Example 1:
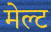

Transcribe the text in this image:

मेल्ट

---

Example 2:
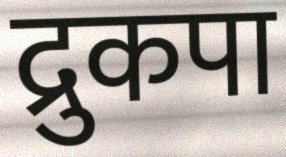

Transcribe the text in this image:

द्रुकपा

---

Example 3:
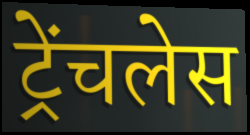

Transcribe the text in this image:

ट्रेंचलेस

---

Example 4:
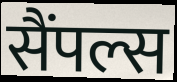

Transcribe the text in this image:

सैंपल्‍स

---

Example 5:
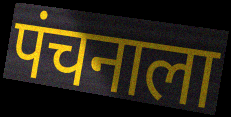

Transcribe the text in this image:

पंचनाला